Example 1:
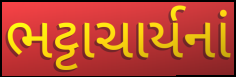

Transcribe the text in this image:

ભટ્ટાચાર્યનાં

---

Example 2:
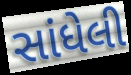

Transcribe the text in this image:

સાંધેલી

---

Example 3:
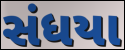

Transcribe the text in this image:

સંધયા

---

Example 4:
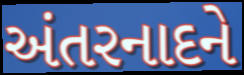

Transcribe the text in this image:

અંતરનાદને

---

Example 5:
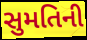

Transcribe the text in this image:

સુમતિની